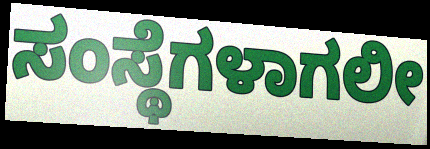
ಸಂಸ್ಥೆಗಳಾಗಲೀ